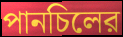
পানচিলের